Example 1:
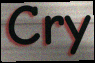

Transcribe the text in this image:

Cry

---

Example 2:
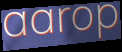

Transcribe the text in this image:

aarop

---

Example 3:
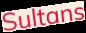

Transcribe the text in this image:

Sultans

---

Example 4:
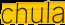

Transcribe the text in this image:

chula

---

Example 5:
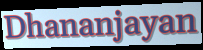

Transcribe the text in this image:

Dhananjayan